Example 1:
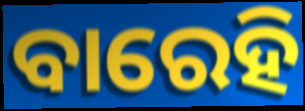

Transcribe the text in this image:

ବାରେହି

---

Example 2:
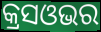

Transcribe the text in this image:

କ୍ରସଓଭର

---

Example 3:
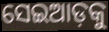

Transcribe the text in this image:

ସେଇଆଡ଼କୁ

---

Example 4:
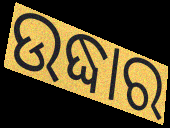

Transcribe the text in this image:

ଉଦ୍ଧାର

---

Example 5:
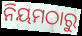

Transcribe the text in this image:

ନିୟମଠାରୁ